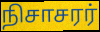
நிசாசரர்